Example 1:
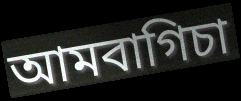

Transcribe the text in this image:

আমবাগিচা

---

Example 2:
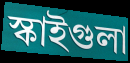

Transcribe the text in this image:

স্কাইগুলা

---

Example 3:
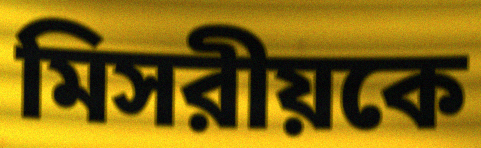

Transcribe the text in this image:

মিসরীয়কে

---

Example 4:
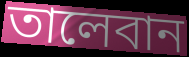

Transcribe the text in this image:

তালেবান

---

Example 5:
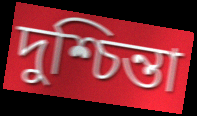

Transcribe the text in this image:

দুশ্চিন্তা